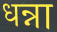
धन्ना